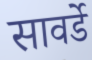
सावर्डे